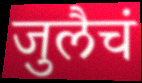
जुलैचं